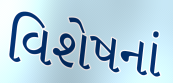
વિશેષનાં